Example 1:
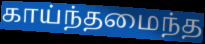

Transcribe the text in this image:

காய்ந்தமைந்த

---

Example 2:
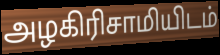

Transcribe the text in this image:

அழகிரிசாமியிடம்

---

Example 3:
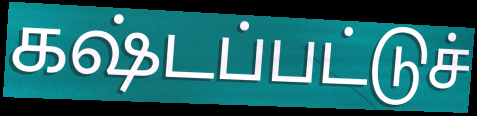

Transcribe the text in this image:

கஷ்டப்பட்டுச்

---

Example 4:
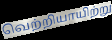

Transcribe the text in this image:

வெற்றியாயிற்று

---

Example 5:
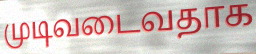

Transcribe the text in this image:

முடிவடைவதாக